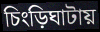
চিংড়িঘাটায়